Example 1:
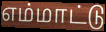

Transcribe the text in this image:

எம்மாட்டு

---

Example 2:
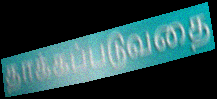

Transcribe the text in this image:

தாக்கப்படுவதை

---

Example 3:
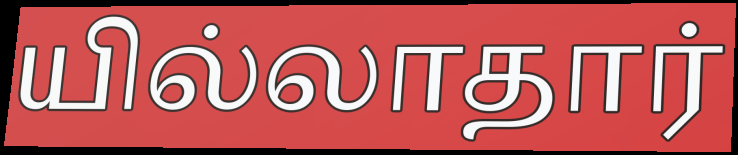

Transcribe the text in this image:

யில்லாதார்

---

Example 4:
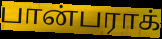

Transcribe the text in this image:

பான்பராக்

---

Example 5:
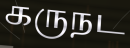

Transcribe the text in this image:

கருநட